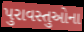
પુરાવસ્તુઓના